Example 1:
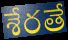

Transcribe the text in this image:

శేరతే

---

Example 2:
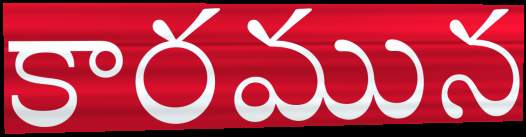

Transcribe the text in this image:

కారమున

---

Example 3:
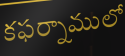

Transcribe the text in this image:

కఫర్నాములో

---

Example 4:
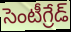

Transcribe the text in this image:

సెంటీగ్రేడ్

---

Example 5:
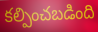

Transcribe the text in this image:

కల్పించబడింది